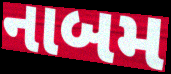
નાબમ